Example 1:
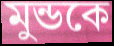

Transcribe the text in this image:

মুন্ডকে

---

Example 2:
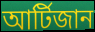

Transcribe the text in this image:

আর্টিজান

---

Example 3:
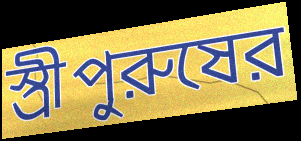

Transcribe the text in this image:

স্ত্রীপুরুষের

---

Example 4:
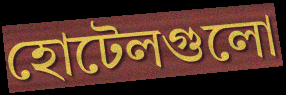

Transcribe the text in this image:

হোটেলগুলো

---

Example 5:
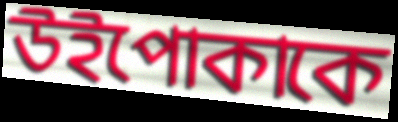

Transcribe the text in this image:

উইপোকাকে